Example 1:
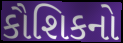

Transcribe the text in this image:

કૌશિકનો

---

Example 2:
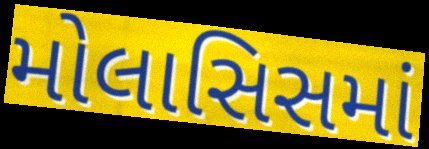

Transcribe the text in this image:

મોલાસિસમાં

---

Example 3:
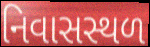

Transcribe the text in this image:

નિવાસસ્થળ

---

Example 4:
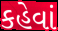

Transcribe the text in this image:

કહેવાં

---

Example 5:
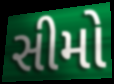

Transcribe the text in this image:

સીમો